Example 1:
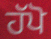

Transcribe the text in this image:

ਹੱਪੋ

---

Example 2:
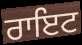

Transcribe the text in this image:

ਰਾਇਟ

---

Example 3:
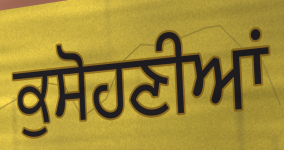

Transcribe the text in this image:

ਕੁਸੋਹਣੀਆਂ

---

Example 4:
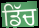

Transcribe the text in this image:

ਡਿੱਚ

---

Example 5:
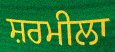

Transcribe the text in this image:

ਸ਼ਰਮੀਲਾ